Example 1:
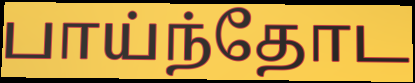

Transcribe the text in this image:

பாய்ந்தோட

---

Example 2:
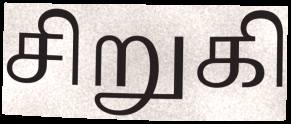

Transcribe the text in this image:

சிறுகி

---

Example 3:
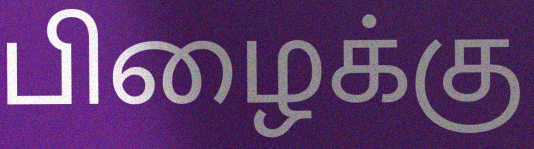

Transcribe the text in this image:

பிழைக்கு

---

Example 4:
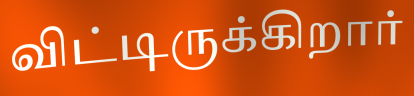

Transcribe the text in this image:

விட்டிருக்கிறார்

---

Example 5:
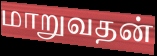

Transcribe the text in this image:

மாறுவதன்